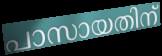
പാസായതിന്